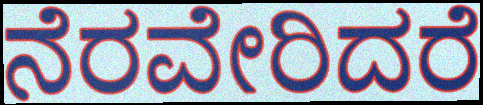
ನೆರವೇರಿದರೆ